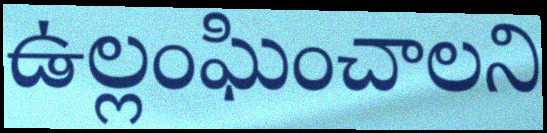
ఉల్లంఘించాలని